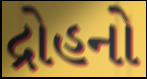
દ્રોહનો